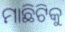
ମାଛିଟିକୁ